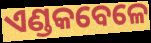
ଏଣ୍ଡକବେଳେ